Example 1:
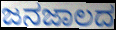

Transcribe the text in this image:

ಜನಜಾಲದ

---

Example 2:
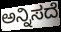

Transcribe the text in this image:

ಅನ್ನಿಸದೆ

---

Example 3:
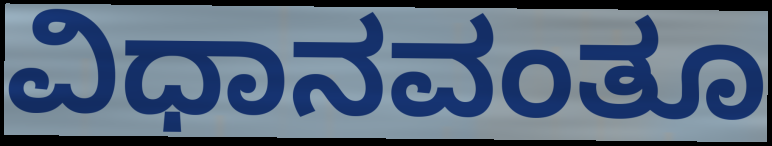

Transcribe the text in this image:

ವಿಧಾನವಂತೂ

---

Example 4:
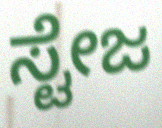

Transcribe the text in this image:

ಸ್ಟೇಜ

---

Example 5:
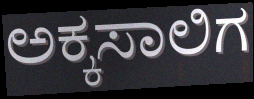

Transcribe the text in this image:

ಅಕ್ಕಸಾಲಿಗ